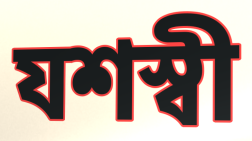
যশস্বী